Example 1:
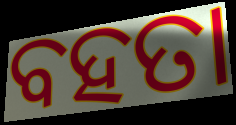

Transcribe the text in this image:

ବହତା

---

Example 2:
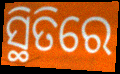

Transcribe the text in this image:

ସ୍ଥିତିରେ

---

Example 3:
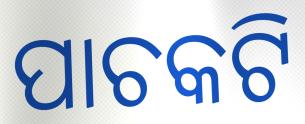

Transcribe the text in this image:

ପାଚକଟି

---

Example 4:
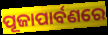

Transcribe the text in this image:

ପୂଜାପାର୍ବଣରେ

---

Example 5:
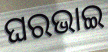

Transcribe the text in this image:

ଘରଭାଇ